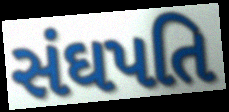
સંઘપતિ